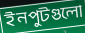
ইনপুটগুলো